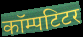
कॉम्पटिटर